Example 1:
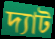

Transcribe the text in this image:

দ্যাট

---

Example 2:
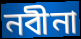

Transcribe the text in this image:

নবীনা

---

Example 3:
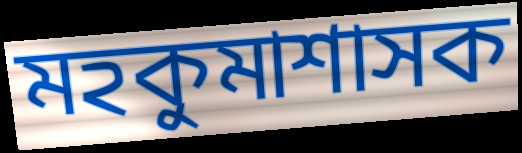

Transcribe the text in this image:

মহকুমাশাসক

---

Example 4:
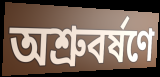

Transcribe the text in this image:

অশ্রুবর্ষণে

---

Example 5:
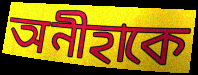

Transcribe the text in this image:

অনীহাকে